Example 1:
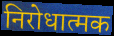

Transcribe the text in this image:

निरोधात्मक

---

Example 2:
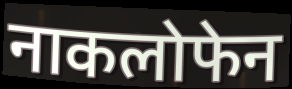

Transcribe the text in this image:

नाकलोफेन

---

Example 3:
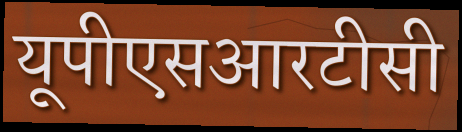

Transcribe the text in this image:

यूपीएसआरटीसी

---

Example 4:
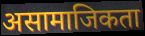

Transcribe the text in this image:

असामाजिकता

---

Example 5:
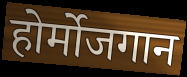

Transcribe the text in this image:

होर्मोजगान